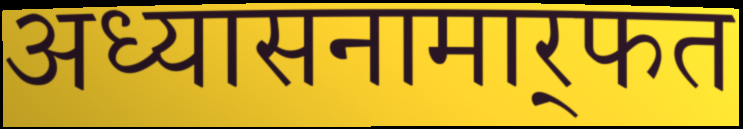
अध्यासनामार्फत